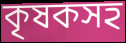
কৃষকসহ